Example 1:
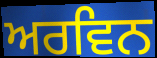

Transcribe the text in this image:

ਅਰਵਿਨ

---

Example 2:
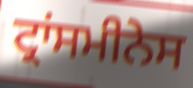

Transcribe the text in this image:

ਟ੍ਰਾਂਸਮੀਨੇਸ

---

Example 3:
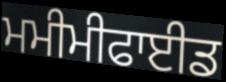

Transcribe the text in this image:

ਮਮੀਮੀਫਾਈਡ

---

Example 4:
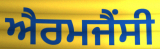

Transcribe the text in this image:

ਐਰਮਜੈਂਸੀ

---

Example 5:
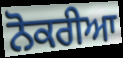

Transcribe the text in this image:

ਨੋਕਰੀਆ